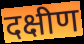
दक्षीण